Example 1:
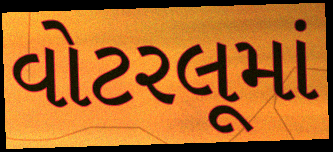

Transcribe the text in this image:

વોટરલૂમાં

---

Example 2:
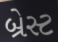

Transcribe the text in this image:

બ્રેસ્ટ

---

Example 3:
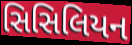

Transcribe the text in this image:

સિસિલિયન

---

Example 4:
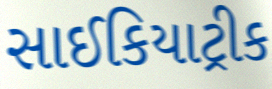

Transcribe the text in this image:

સાઈકિયાટ્રીક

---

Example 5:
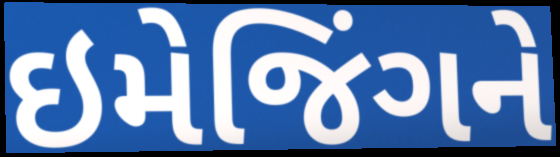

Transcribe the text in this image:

ઇમેજિંગને